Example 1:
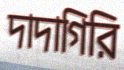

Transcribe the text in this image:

দাদাগিরি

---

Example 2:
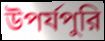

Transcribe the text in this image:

উপর্যপুরি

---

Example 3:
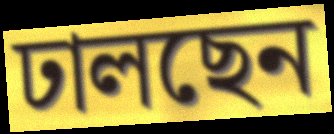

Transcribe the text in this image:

ঢালছেন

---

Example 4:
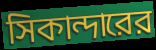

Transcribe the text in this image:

সিকান্দারের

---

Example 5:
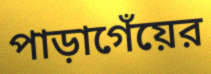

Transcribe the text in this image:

পাড়াগেঁয়ের